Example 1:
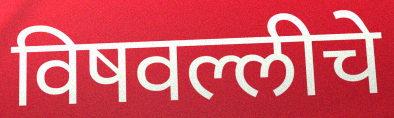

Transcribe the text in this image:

विषवल्लीचे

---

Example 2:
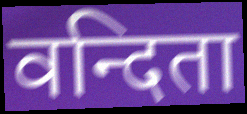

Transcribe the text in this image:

वन्दिता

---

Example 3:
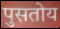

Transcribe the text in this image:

पुसतोय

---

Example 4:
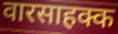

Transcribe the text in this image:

वारसाहक्क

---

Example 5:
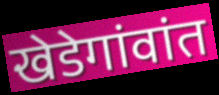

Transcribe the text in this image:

खेडेगांवांत